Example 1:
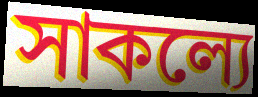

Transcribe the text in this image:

সাকল্যে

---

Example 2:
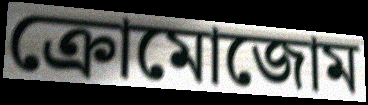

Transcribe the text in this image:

ক্রোমোজোম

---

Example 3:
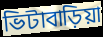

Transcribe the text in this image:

ভিটাবাড়িয়া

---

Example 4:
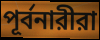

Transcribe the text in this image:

পূর্বনারীরা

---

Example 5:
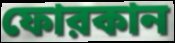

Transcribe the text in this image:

ফোরকান